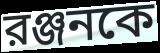
রঞ্জনকে